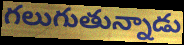
గలుగుతున్నాడు